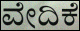
ವೇದಿಕೆ